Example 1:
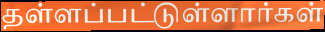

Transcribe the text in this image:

தள்ளப்பட்டுள்ளார்கள்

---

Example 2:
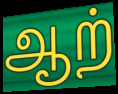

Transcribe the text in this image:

ஆற்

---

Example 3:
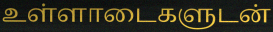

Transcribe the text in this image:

உள்ளாடைகளுடன்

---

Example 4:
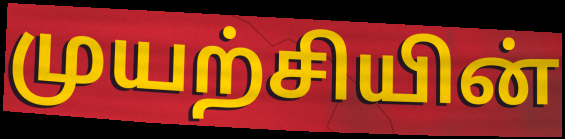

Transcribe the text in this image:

முயற்சியின்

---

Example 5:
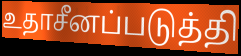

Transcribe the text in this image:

உதாசீனப்படுத்தி